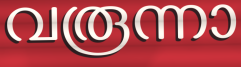
വരൂന്നാ